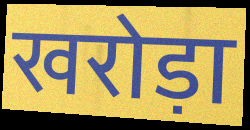
खरोड़ा